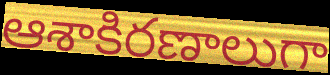
ఆశాకిరణాలుగా